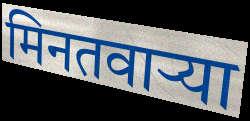
मिनतवार्‍या